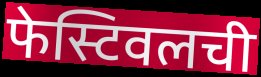
फेस्टिवलची